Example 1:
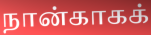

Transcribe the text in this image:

நான்காகக்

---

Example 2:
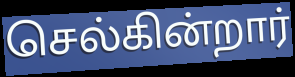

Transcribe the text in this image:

செல்கின்றார்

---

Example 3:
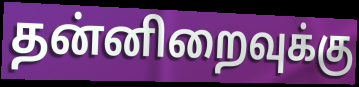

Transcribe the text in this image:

தன்னிறைவுக்கு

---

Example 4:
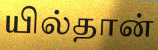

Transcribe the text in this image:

யில்தான்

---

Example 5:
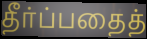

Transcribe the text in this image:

தீர்ப்பதைத்